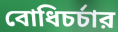
বোধিচর্চার